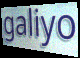
galiyo